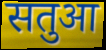
सतुआ